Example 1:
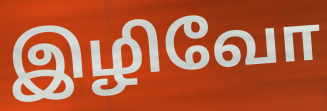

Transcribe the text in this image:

இழிவோ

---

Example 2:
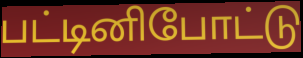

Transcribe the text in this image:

பட்டினிபோட்டு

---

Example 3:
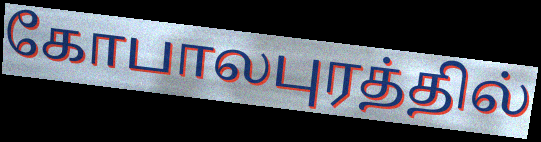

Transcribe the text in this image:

கோபாலபுரத்தில்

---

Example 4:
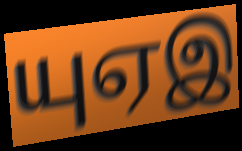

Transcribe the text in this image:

யுஏஇ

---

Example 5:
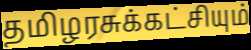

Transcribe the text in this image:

தமிழரசுக்கட்சியும்